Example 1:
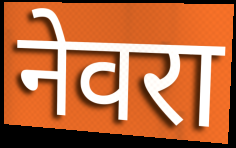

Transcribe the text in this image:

नेवरा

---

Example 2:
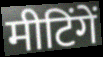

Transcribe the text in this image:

मीटिंगें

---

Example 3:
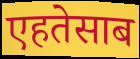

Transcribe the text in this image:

एहतेसाब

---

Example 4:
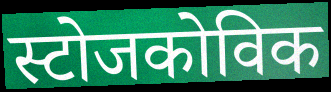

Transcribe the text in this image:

स्टोजकोविक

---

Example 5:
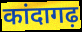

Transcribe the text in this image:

कांदागढ़